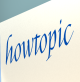
howtopic